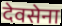
देवसेना